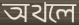
অথলে